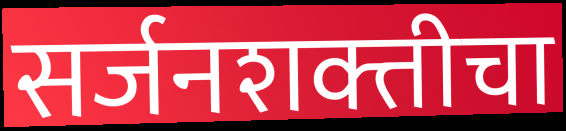
सर्जनशक्तीचा